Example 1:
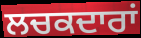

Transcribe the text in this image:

ਲਚਕਦਾਰਾਂ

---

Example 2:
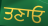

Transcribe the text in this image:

ਤਣਾਓ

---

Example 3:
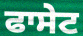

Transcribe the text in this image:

ਫਾਸੇਟ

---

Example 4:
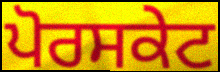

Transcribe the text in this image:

ਪੋਰਸਕੇਟ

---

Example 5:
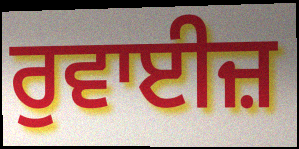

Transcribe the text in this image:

ਰੁਵਾਈਜ਼